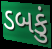
ડબકું